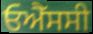
ਓਐੱਸਸੀ